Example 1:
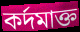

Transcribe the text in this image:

কর্দমাক্ত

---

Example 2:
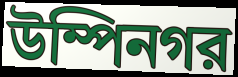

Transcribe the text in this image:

উম্পিনগর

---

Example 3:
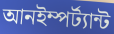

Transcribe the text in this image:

আনইম্পর্ট্যান্ট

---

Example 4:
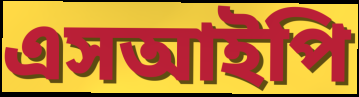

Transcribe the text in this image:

এসআইপি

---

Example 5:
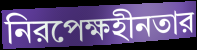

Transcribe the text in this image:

নিরপেক্ষহীনতার